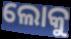
ଲୋକୁ